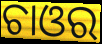
ଚାଓର